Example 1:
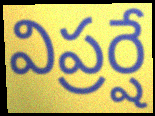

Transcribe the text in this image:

విప్రర్షే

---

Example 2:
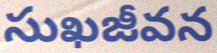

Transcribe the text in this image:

సుఖజీవన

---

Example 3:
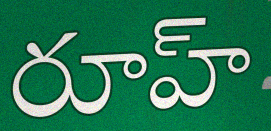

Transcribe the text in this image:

రూహ్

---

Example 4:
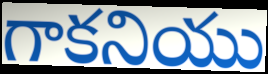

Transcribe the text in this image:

గాకనియు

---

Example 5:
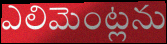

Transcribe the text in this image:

ఎలిమెంట్లను